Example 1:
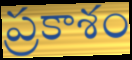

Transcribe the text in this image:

ప్రకాశం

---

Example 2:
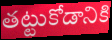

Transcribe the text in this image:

తట్టుకోడానికి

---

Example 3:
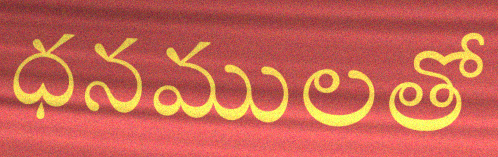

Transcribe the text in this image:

ధనములతో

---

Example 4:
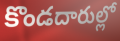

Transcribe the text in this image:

కొండదారుల్లో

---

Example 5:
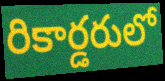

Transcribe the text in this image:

రికార్డరులో